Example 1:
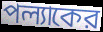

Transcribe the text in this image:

পল্যাকের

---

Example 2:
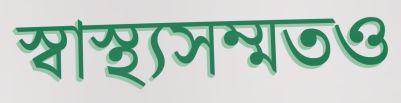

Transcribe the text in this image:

স্বাস্থ্যসম্মতও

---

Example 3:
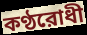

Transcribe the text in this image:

কণ্ঠরোধী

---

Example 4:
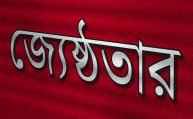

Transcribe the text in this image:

জ্যেষ্ঠতার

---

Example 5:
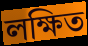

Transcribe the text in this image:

লক্ষিত